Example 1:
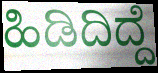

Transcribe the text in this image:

ಹಿಡಿದಿದ್ದೆ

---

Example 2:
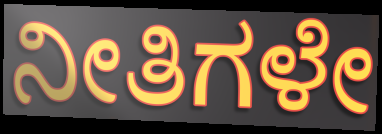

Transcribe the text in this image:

ನೀತಿಗಳೇ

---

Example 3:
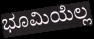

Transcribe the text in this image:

ಭೂಮಿಯೆಲ್ಲ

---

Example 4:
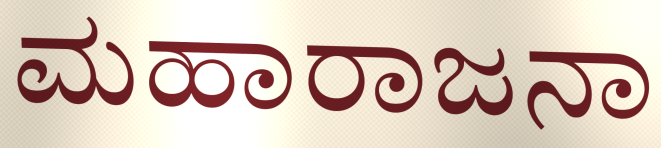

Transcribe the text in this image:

ಮಹಾರಾಜನಾ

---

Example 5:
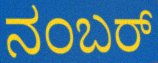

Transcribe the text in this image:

ನಂಬರ್